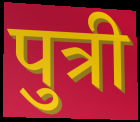
पुत्री